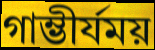
গাম্ভীর্যময়